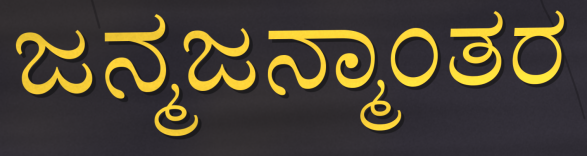
ಜನ್ಮಜನ್ಮಾಂತರ